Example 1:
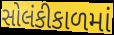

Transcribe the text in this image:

સોલંકીકાળમાં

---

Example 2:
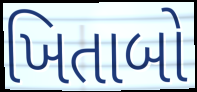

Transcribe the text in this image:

ખિતાબો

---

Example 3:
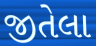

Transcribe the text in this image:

જીતેલા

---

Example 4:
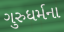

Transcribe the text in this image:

ગુરુધર્મના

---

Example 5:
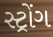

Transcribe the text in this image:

સ્ટ્રોંગ